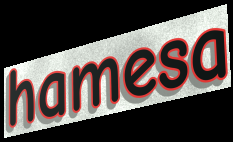
hamesa